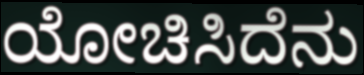
ಯೋಚಿಸಿದೆನು